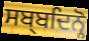
ਸਬ੍ਬਦਿਨ੍ਨੋ